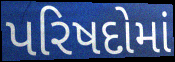
પરિષદોમાં